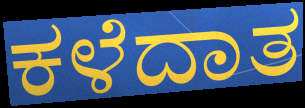
ಕಳೆದಾತ